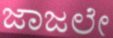
ಜಾಜಲೇ